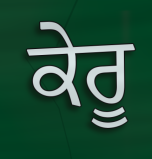
ਕੇਰੂ